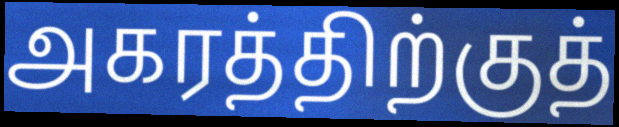
அகரத்திற்குத்